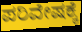
ಪರಿವೇಷಕ್ಕೆ